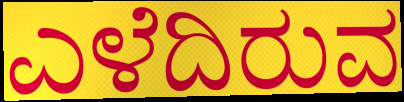
ಎಳೆದಿರುವ